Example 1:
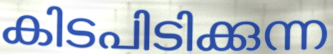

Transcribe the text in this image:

കിടപിടിക്കുന്ന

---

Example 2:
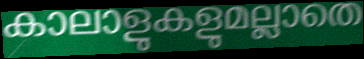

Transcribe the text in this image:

കാലാളുകളുമല്ലാതെ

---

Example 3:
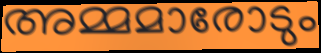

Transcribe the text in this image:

അമ്മമാരോടും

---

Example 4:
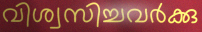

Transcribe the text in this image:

വിശ്വസിച്ചവർക്കു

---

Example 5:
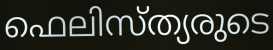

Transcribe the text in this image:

ഫെലിസ്ത്യരുടെ